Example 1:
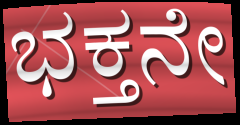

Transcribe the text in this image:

ಭಕ್ತನೇ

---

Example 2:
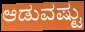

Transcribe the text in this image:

ಆಡುವಷ್ಟು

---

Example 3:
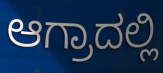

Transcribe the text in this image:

ಆಗ್ರಾದಲ್ಲಿ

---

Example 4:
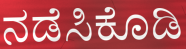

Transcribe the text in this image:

ನಡೆಸಿಕೊಡಿ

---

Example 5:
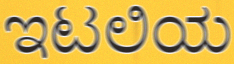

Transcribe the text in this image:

ಇಟಲಿಯ